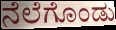
ನೆಲೆಗೊಂಡು